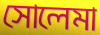
সোলেমা